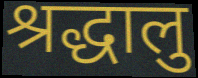
श्रद्धालु